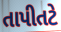
તાપીતટે